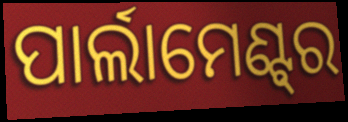
ପାର୍ଲାମେଣ୍ଟ୍‌ର